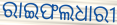
ରାଇଫଲଧାରୀ